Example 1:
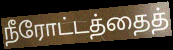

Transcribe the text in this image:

நீரோட்டத்தைத்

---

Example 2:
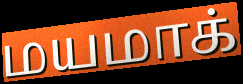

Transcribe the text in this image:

மயமாக்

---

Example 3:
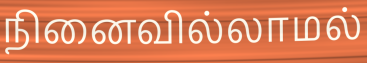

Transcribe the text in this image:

நினைவில்லாமல்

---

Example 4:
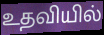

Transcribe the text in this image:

உதவியில்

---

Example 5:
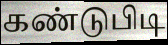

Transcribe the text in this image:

கண்டுபிடி